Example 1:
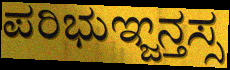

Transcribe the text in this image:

ಪರಿಭುಞ್ಜನ್ತಸ್ಸ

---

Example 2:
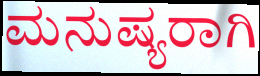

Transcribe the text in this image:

ಮನುಷ್ಯರಾಗಿ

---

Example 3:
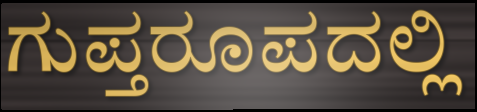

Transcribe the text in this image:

ಗುಪ್ತರೂಪದಲ್ಲಿ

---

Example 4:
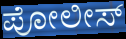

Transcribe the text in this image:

ಪೋಲೀಸ್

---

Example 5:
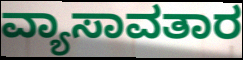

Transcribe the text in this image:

ವ್ಯಾಸಾವತಾರ